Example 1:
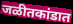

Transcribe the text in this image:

जळीतकांडात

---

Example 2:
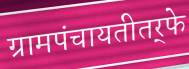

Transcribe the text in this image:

ग्रामपंचायतीतर्फे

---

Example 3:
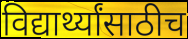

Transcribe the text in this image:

विद्यार्थ्यांसाठीच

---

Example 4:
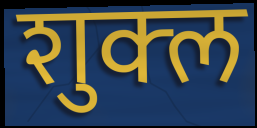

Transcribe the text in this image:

शुक्‍ल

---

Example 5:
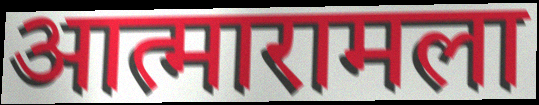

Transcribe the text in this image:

आत्मारामला